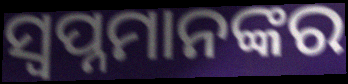
ସ୍ବପ୍ନମାନଙ୍କର